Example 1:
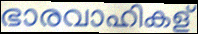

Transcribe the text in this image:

ഭാരവാഹികള്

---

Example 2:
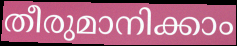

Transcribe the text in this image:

തീരുമാനിക്കാം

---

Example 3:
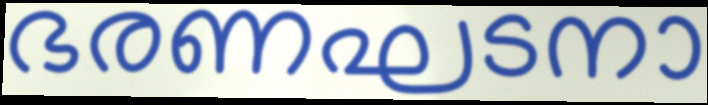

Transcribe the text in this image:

ഭരണഘടനാ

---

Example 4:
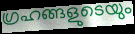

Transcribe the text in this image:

ഗ്രഹങ്ങളുടെയും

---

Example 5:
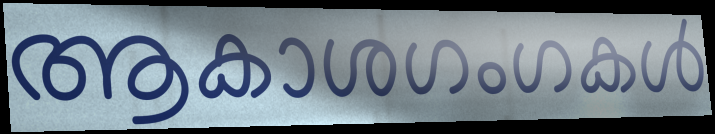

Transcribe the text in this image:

ആകാശഗംഗകൾ